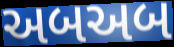
અબઅબ